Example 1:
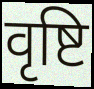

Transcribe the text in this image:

वृष्टि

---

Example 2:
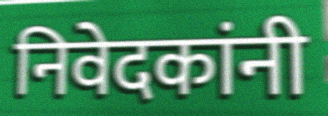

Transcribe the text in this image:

निवेदकांनी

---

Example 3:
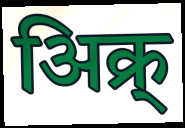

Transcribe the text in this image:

अिक्र्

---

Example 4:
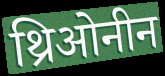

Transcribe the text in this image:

थ्रिओनीन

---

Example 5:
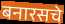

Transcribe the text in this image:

बनारसचे